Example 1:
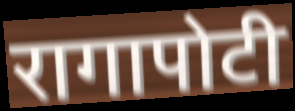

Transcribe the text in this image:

रागापोटी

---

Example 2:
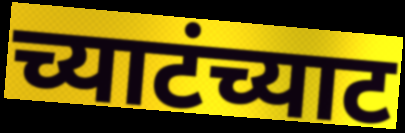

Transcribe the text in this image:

च्याटंच्याट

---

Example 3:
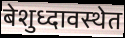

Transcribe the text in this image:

बेशुध्दावस्थेत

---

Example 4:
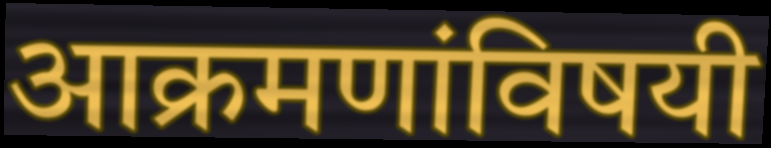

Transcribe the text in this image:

आक्रमणांविषयी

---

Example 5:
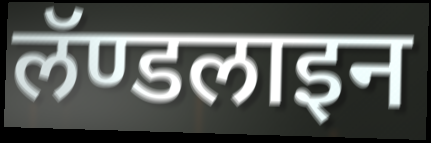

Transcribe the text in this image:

लॅण्डलाइन